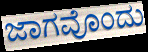
ಜಾಗವೊಂದು